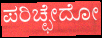
ಪರಿಚ್ಛೇದೋ